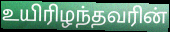
உயிரிழந்தவரின்